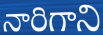
నారిగాని